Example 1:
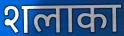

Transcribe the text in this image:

शलाका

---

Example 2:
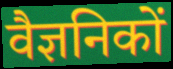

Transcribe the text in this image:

वैज्ञनिकों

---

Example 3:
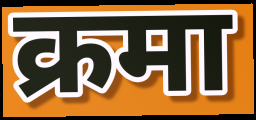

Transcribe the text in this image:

क्रमा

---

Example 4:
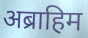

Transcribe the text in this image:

अब्राहिम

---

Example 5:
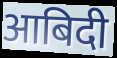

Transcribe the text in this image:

आबिदी